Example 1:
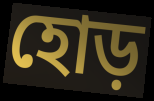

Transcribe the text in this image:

হোড়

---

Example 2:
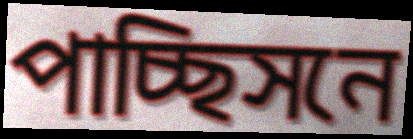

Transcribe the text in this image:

পাচ্ছিসনে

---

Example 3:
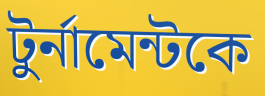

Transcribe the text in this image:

টুর্নামেন্টকে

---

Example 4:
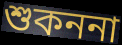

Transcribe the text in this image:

শুকননা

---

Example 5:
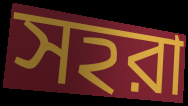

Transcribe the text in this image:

সহরা